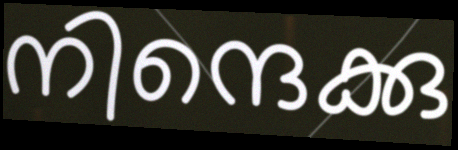
നിന്ദെക്കു